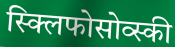
स्क्लिफोसोव्स्की